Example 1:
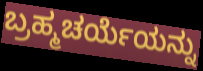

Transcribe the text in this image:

ಬ್ರಹ್ಮಚರ್ಯೆಯನ್ನು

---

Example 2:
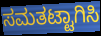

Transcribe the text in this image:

ಸಮತಟ್ಟಾಗಿಸಿ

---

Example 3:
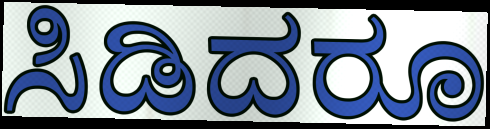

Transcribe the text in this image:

ಸಿಡಿದರೂ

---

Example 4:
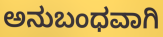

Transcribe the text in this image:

ಅನುಬಂಧವಾಗಿ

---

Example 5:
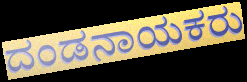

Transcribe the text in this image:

ದಂಡನಾಯಕರು